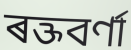
ৰক্তবৰ্ণা